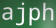
ajph